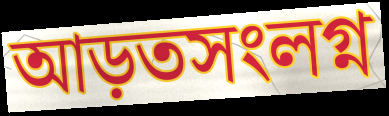
আড়তসংলগ্ন